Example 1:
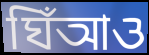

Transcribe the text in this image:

ঘিঁআও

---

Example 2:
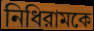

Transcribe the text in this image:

নিধিরামকে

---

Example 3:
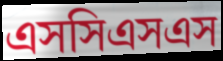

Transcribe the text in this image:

এসসিএসএস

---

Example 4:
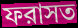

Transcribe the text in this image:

ফরাসত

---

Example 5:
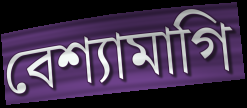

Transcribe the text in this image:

বেশ্যামাগি